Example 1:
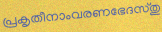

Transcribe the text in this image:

പ്രകൃതീനാംവരണഭേദസ്തു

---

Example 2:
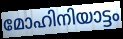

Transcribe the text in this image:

മോഹിനിയാട്ടം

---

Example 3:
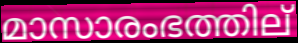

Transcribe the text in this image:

മാസാരംഭത്തില്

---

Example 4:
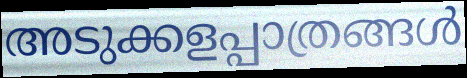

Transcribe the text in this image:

അടുക്കളപ്പാത്രങ്ങൾ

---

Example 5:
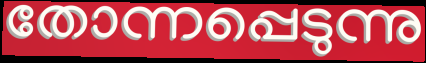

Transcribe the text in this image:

തോന്നപ്പെടുന്നു